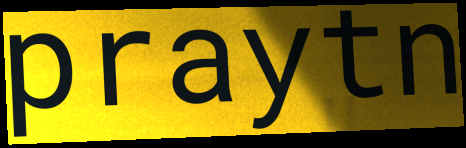
praytn